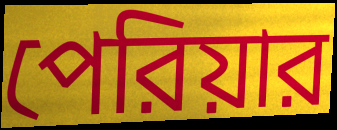
পেরিয়ার